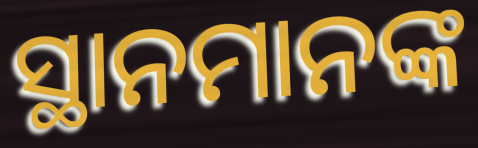
ସ୍ଥାନମାନଙ୍କ